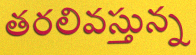
తరలివస్తున్న